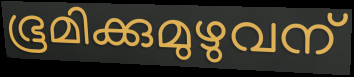
ഭൂമിക്കുമുഴുവന്